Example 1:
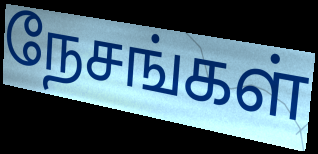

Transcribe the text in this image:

நேசங்கள்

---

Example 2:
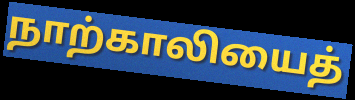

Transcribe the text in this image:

நாற்காலியைத்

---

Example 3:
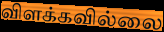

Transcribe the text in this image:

விளக்கவில்லை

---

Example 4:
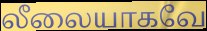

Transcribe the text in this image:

லீலையாகவே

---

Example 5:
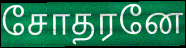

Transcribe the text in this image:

சோதரனே